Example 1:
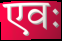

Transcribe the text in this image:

एवः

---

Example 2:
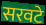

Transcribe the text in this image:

सरवटे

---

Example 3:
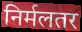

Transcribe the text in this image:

निर्मलतर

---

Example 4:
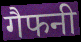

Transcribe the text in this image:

गैफनी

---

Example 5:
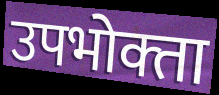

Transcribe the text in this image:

उपभोक्‍ता